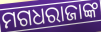
ମଗଧରାଜାଙ୍କ